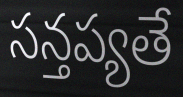
సన్తప్యతే